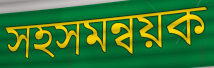
সহসমন্বয়ক